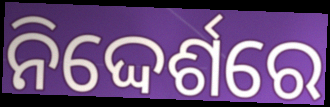
ନିଦ୍ଦେର୍ଶରେ